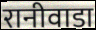
रानीवाडा